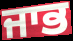
ਜਾਭ